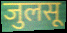
जुलसू